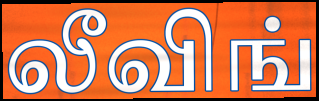
லீவிங்